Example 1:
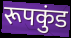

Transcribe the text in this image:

रूपकुंड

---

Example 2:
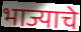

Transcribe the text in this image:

भाज्याचे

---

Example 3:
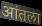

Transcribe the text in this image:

आंतला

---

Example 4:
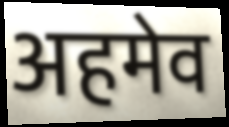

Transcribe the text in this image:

अहमेव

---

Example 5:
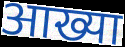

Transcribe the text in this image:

आख्या